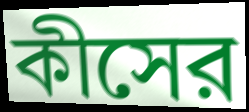
কীসের